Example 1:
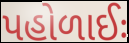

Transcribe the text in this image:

પહોળાઈઃ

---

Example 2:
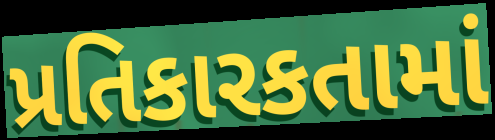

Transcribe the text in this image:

પ્રતિકારકતામાં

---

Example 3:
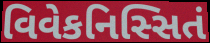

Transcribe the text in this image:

વિવેકનિસ્સિતં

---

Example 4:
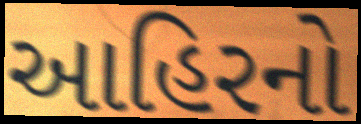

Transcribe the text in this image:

આહિરનો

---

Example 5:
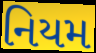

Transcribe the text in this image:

નિયમ